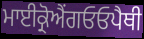
ਮਾਈਕ੍ਰੋਐਂਗਓਓਪੈਥੀ